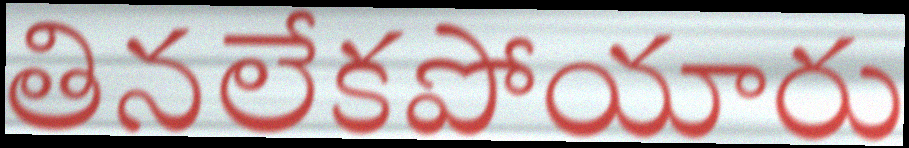
తినలేకపోయారు